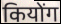
कियोंग